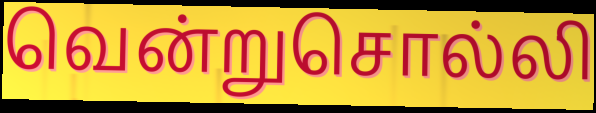
வென்றுசொல்லி